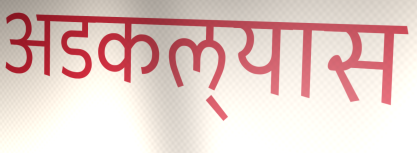
अडकल्यास